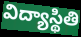
విద్యాస్థితి